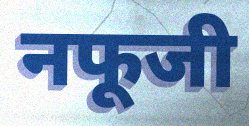
नफूजी